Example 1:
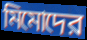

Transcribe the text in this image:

মিমোদের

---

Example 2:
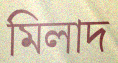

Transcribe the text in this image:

মিলাদ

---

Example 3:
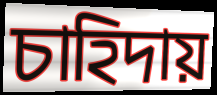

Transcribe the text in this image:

চাহিদায়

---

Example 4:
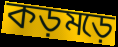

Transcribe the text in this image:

কড়মড়ে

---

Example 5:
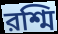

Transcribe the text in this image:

রশ্মি